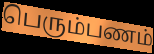
பெரும்பணம்